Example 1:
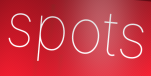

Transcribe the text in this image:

spots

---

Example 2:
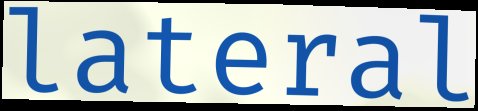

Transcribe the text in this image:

lateral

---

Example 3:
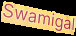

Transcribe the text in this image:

Swamigal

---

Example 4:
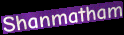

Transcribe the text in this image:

Shanmatham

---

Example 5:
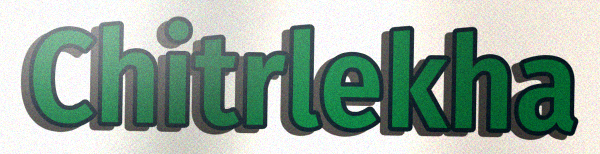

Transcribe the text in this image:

Chitrlekha